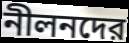
নীলনদের